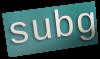
subg